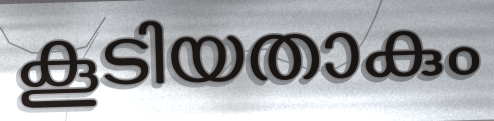
കൂടിയതാകും